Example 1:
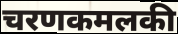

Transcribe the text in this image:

चरणकमलकी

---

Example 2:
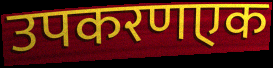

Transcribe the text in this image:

उपकरणएक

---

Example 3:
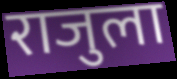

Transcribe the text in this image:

राजुला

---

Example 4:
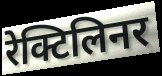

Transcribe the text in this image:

रेक्टिलिनर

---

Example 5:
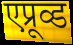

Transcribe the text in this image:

एप्रूव्ड